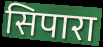
सिपारा